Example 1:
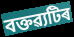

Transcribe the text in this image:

বক্তৱ্যটিৰ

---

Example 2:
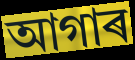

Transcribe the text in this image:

আগাৰ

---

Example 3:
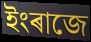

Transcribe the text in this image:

ইংৰাজে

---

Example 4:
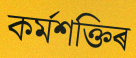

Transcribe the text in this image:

কৰ্মশক্তিৰ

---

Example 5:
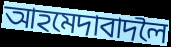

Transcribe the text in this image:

আহমেদাবাদলৈ